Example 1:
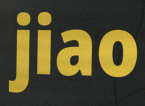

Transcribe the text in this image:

jiao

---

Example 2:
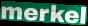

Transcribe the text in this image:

merkel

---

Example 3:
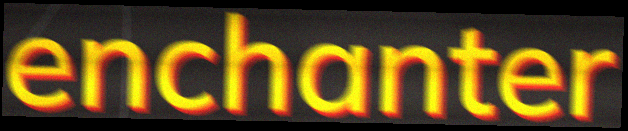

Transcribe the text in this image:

enchanter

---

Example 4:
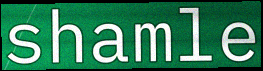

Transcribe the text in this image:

shamle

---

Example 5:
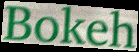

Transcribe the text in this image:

Bokeh